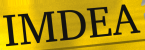
IMDEA